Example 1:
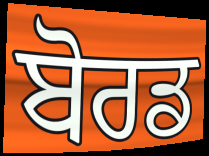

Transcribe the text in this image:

ਬੋਰਡ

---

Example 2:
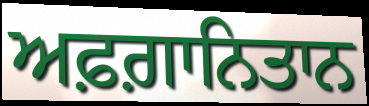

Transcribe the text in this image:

ਅਫ਼ਗ਼ਾਨਿਤਾਨ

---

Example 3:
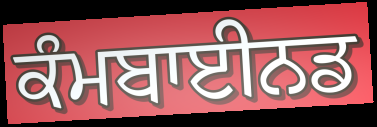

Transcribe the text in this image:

ਕੰਮਬਾਈਨਡ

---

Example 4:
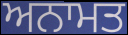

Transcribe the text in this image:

ਅਨਾਮਤ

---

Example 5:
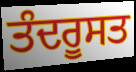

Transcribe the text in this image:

ਤੰਦਰੂਸਤ